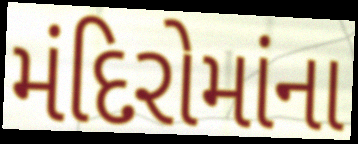
મંદિરોમાંના